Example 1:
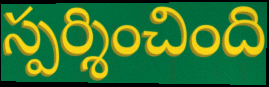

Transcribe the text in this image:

స్పర్శించింది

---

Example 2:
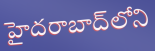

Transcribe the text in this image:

హైదరాబాద్‌లోని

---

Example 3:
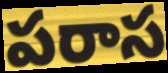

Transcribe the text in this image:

పరాస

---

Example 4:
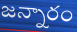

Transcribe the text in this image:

జన్నారం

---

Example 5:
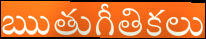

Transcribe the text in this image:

ఋతుగీతికలు